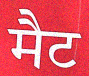
मैट